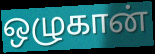
ஒழுகான்